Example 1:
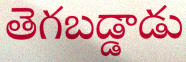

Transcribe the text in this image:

తెగబడ్డాడు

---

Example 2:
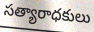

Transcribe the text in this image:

సత్యారాధకులు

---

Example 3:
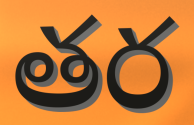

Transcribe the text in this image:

తర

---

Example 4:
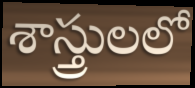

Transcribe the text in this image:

శాస్త్రులలో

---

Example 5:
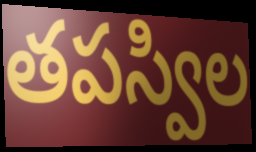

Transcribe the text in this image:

తపస్విల